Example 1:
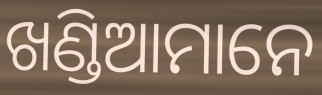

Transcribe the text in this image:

ଖଣ୍ଡିଆମାନେ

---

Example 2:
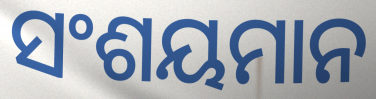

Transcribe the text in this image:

ସଂଶୟମାନ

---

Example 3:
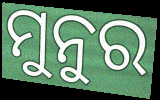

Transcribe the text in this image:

ମୁନୁର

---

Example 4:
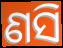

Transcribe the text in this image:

ଣସି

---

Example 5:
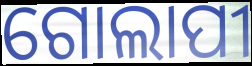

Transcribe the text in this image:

ଗୋଲାପୀ